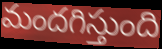
మందగిస్తుంది